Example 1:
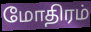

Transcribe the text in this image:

மோதிரம்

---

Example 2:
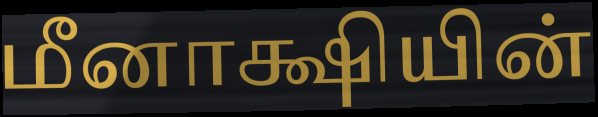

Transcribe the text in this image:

மீனாக்ஷியின்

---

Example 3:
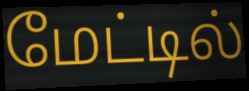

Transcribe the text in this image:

மேட்டில்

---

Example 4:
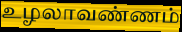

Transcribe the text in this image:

உழலாவண்ணம்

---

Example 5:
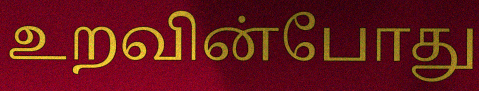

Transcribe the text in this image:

உறவின்போது